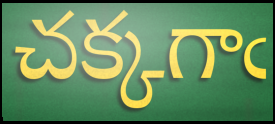
చక్కగాఁ